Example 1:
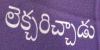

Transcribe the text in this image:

లెక్చరిచ్చాడు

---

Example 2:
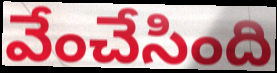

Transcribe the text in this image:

వేంచేసింది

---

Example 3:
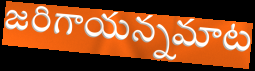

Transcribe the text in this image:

జరిగాయన్నమాట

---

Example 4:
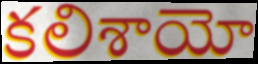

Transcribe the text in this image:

కలిశాయో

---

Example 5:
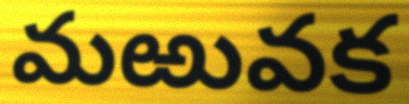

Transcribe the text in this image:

మఱువక